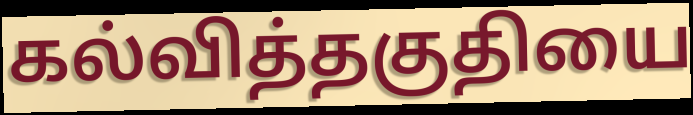
கல்வித்தகுதியை